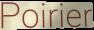
Poirier